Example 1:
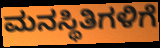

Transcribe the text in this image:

ಮನಸ್ಥಿತಿಗಳಿಗೆ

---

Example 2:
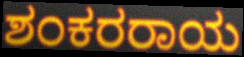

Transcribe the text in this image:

ಶಂಕರರಾಯ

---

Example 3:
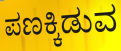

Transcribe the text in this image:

ಪಣಕ್ಕಿಡುವ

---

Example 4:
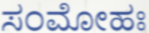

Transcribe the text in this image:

ಸಂಮೋಹಃ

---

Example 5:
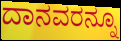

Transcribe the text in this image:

ದಾನವರನ್ನೂ